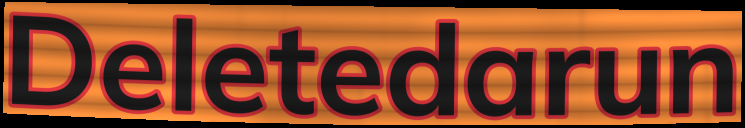
Deletedarun